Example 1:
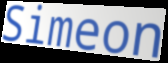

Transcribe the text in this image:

Simeon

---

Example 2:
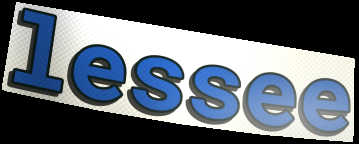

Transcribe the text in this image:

lessee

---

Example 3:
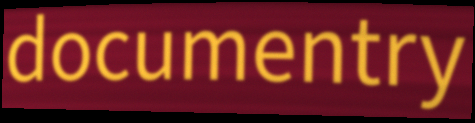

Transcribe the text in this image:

documentry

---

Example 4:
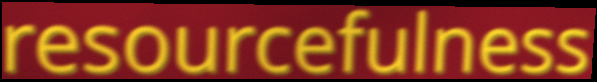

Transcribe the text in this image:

resourcefulness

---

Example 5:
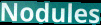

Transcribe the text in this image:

Nodules